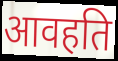
आवहति